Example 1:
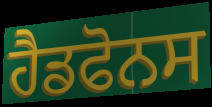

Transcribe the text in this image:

ਹੈਡਫੋਨਸ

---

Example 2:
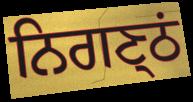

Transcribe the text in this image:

ਨਿਗਣ੍ਠਂ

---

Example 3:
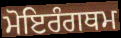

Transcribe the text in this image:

ਮੋਇਰੰਗਥਮ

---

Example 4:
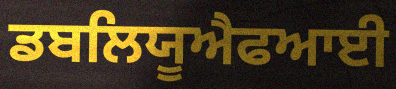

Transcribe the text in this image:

ਡਬਲਿਯੂਐਫਆਈ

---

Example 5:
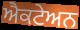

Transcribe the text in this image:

ਐਕਟੇਅਨ